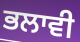
ਭਲਾਵੀ